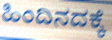
ಹಿಂದಿನದಕ್ಕೆ